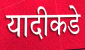
यादीकडे